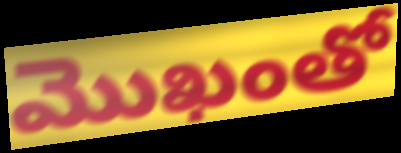
మొఖంతో